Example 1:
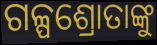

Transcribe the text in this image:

ଗଳ୍ପଶ୍ରୋତାଙ୍କୁ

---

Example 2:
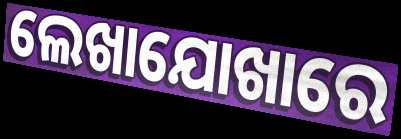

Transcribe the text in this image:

ଲେଖାଯୋଖାରେ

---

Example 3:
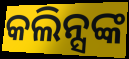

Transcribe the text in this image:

କଲିନ୍ସଙ୍କ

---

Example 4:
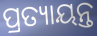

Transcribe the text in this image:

ପ୍ରତ୍ୟାୟନ୍ତ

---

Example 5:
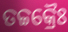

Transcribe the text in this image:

ତଚ୍ଚକ୍ରୈଃ